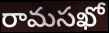
రామసఖో